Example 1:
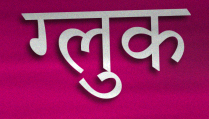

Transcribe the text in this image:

ग्लुक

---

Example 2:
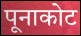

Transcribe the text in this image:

पूनाकोट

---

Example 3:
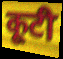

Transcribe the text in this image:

कूटी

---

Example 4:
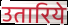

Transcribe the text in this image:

उतारिये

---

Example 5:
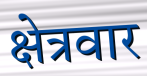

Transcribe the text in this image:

क्षेत्रवार